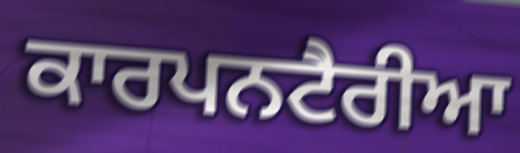
ਕਾਰਪਨਟੈਰੀਆ